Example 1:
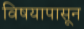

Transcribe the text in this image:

विषयापासून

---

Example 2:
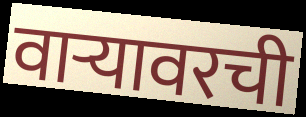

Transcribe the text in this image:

वार्‍यावरची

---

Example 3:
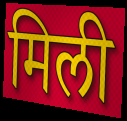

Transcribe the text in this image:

मिली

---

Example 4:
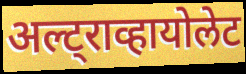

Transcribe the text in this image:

अल्ट्राव्हायोलेट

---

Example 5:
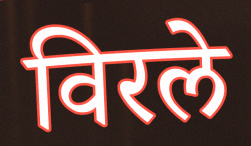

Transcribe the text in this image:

विरले